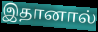
இதானால்